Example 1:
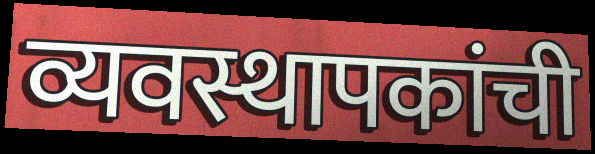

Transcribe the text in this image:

व्यवस्थापकांची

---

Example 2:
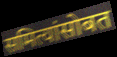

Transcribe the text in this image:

समित्यांसोबत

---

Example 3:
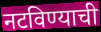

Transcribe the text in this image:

नटविण्याची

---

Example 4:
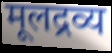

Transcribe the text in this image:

मूलद्रव्य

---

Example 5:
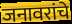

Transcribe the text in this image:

जनावरांचे